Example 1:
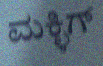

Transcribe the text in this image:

ಮಕ್ಳಿಗ್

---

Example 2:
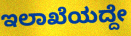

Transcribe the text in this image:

ಇಲಾಖೆಯದ್ದೇ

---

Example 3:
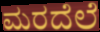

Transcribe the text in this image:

ಮರದೆಲೆ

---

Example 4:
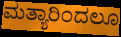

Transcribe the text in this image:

ಮತ್ಯಾರಿಂದಲೂ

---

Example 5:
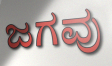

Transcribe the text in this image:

ಜಗವು